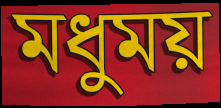
মধুময়